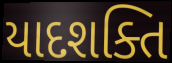
યાદશક્તિ